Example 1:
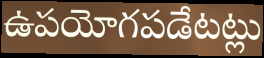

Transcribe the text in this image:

ఉపయోగపడేటట్లు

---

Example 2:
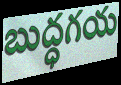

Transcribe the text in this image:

బుద్ధగయ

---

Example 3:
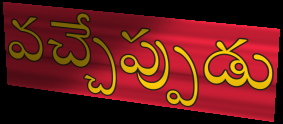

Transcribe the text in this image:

వచ్చేప్పుడు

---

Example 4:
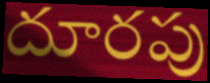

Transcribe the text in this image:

దూరపు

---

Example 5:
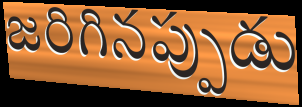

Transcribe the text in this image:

జరిగినప్పుడు